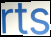
rts